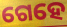
ଗେହେ